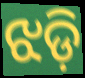
ଝଡ଼ି